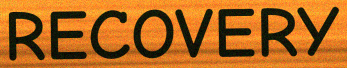
RECOVERY